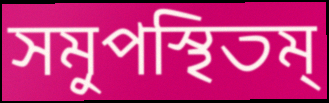
সমুপস্থিতম্